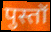
पुस्तों